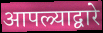
आपल्याद्वारे